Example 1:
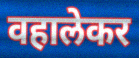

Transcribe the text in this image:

वहालेकर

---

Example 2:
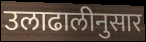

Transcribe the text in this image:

उलाढालीनुसार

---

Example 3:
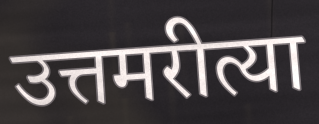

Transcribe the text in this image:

उत्तमरीत्या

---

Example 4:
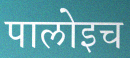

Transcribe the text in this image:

पालोइच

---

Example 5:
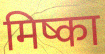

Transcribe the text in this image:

मिष्का